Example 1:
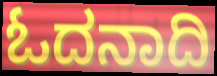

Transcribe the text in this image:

ಓದನಾದಿ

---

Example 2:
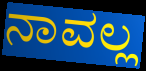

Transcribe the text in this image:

ನಾವಲ್ಲ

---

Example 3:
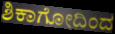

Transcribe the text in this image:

ಶಿಕಾಗೋದಿಂದ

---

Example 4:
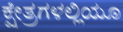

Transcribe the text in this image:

ಕ್ಷೇತ್ರಗಳಲ್ಲಿಯೂ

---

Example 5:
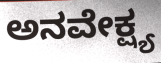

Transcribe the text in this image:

ಅನವೇಕ್ಷ್ಯ